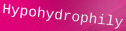
Hypohydrophily